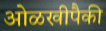
ओळखीपैकी